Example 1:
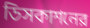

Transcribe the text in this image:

ডিসকাশনের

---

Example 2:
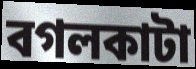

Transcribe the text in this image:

বগলকাটা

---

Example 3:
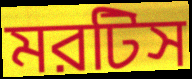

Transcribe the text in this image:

মরটিস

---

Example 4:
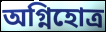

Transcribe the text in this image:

অগ্নিহোত্র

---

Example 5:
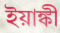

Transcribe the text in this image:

ইয়াঙ্কী